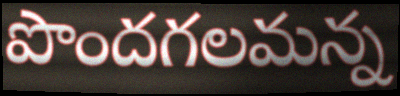
పొందగలమన్న